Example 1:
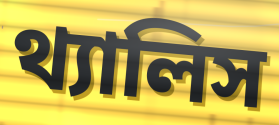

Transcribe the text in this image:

থ্যালিস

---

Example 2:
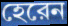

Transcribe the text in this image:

হেরেন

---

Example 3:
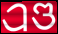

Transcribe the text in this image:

এণ্ড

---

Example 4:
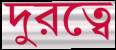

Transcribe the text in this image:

দুরত্বে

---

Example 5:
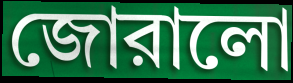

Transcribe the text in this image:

জোরালো